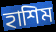
হাশিম